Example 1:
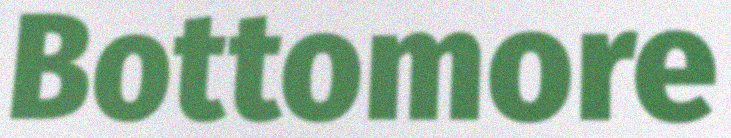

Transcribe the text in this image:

Bottomore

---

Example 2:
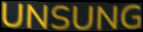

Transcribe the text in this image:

UNSUNG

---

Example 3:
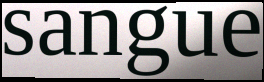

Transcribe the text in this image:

sangue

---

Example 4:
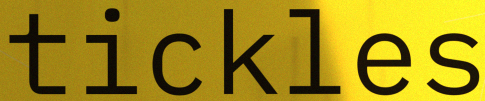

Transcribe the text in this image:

tickles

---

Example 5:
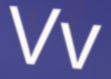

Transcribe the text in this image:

Vv